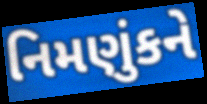
નિમણુંકને